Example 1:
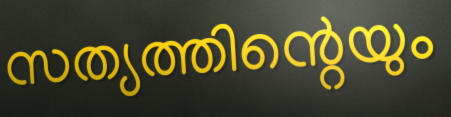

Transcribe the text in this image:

സത്യത്തിന്റെയും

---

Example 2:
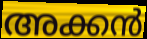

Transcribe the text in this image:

അക്കൻ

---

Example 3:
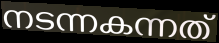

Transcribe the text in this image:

നടന്നകന്നത്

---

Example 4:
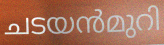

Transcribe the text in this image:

ചടയൻമുറി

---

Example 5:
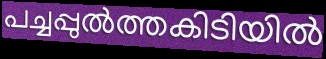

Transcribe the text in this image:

പച്ചപ്പുൽത്തകിടിയിൽ